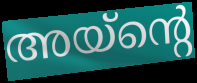
അയ്ന്റെ